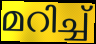
മറിച്ച്